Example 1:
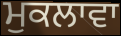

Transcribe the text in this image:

ਮੁਕਲਾਵਾ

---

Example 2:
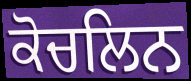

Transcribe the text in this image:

ਕੋਚਲਿਨ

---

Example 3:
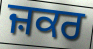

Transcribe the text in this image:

ਜ਼ਕਰ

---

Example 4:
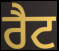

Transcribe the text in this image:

ਰੈਟ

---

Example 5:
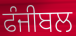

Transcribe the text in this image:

ਫੰਜੀਬਲ